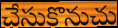
చేసుకొనుచు